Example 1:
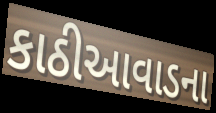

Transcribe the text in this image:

કાઠીઆવાડના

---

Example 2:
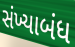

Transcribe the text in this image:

સંખ્યાબંધ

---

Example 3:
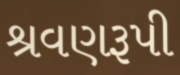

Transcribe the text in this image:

શ્રવણરૂપી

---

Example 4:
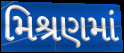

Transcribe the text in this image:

મિશ્રણમાં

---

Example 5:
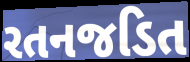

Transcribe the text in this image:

રતનજડિત